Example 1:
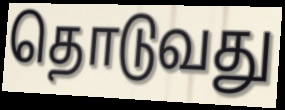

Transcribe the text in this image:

தொடுவது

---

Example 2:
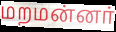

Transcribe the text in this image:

மறமன்னர்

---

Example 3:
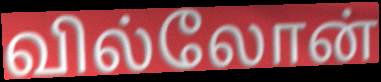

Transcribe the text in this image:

வில்லோன்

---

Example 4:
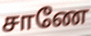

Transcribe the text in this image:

சாணே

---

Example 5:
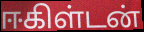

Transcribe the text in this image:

ஈகிள்டன்